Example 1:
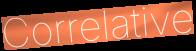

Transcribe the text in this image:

Correlative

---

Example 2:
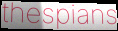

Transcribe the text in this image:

thespians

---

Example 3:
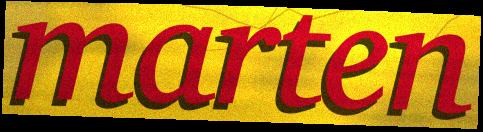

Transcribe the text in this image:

marten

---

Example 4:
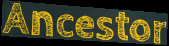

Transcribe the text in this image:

Ancestor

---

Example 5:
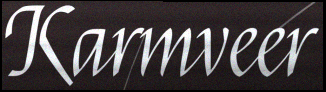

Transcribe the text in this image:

Karmveer